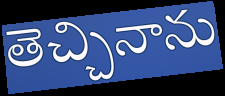
తెచ్చినాను